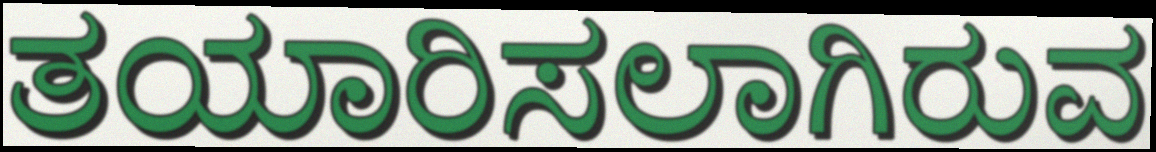
ತಯಾರಿಸಲಾಗಿರುವ